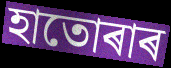
হাতোৰাৰ